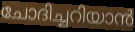
ചോദിച്ചറിയാൻ